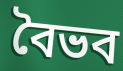
বৈভব